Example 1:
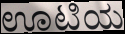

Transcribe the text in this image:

ಊಟಿಯ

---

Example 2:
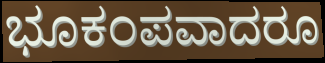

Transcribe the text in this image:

ಭೂಕಂಪವಾದರೂ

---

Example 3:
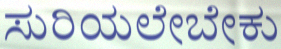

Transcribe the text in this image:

ಸುರಿಯಲೇಬೇಕು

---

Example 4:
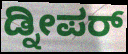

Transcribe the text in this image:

ಡ್ನೀಪರ್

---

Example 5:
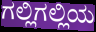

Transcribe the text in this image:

ಗಲ್ಲಿಗಲ್ಲಿಯ